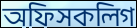
অফিসকলিগ